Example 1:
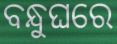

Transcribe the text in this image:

ବନ୍ଧୁଘରେ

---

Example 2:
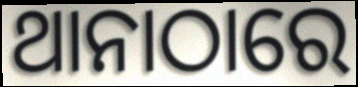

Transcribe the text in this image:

ଥାନାଠାରେ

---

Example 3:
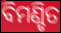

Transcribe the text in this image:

ବିମଣ୍ଡିତ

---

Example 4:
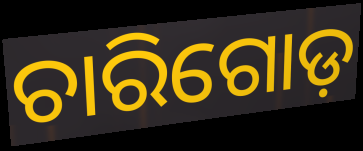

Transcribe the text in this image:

ଚାରିଗୋଡ଼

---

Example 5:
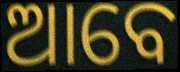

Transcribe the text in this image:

ଆବେ